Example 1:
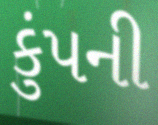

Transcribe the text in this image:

કુંપની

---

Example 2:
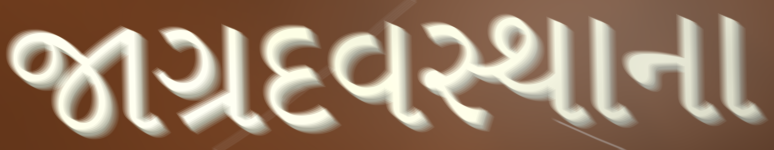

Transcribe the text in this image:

જાગ્રદવસ્થાના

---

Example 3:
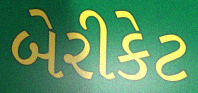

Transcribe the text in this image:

બેરીકેટ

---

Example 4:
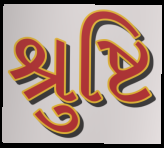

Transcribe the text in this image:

શ્રુષ્ટિ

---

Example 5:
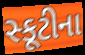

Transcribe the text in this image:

સ્કૂટીના